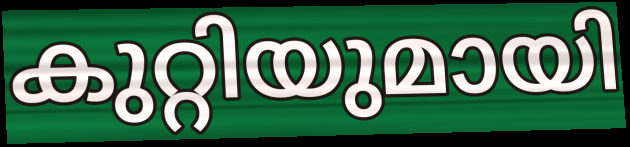
കുറ്റിയുമായി